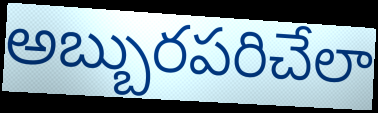
అబ్బురపరిచేలా